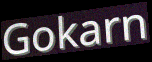
Gokarn